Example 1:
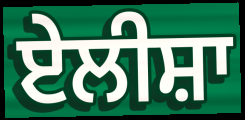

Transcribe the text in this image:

ਏਲੀਸ਼ਾ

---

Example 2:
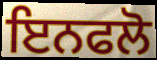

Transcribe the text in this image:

ਇਨਫਲੋ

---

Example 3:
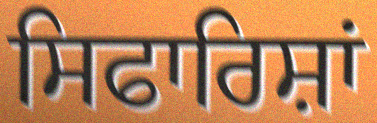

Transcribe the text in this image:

ਸਿਫਾਰਿਸ਼ਾਂ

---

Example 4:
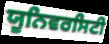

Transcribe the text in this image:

ਯੂਨਿਵਰਸਿਟੀ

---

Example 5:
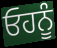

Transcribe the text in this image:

ਓਹਨੂੰ